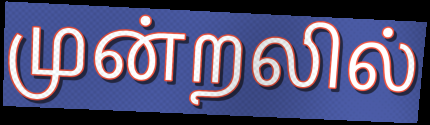
முன்றலில்